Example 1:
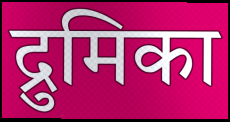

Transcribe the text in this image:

द्रुमिका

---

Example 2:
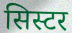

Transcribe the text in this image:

सिस्टर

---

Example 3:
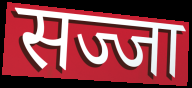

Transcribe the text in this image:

सज्जा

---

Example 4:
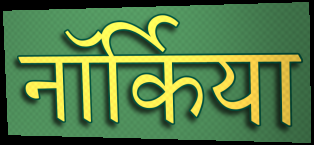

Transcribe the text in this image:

नॉर्किया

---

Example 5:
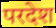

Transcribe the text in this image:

परदेश